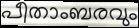
പീതാംബരവും